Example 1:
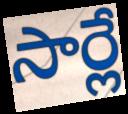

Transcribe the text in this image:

సార్లే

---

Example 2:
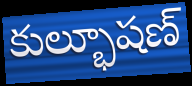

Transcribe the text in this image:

కుల్భూషణ్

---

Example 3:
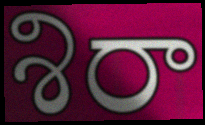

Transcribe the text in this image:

శిరా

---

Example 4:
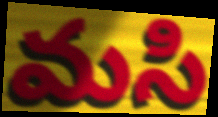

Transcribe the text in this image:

మసి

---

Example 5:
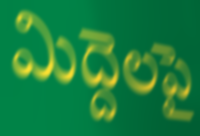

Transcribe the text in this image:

మిద్దెలపై